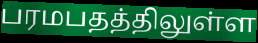
பரமபதத்திலுள்ள